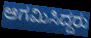
ಆಗಮಿಸಿದ್ದರು